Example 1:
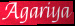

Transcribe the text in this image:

Agariya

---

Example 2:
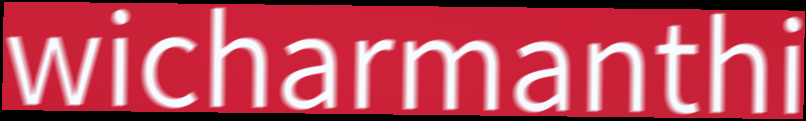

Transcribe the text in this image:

wicharmanthi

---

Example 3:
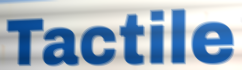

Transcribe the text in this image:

Tactile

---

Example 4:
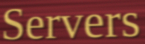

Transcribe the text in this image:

Servers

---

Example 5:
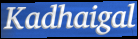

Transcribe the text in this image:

Kadhaigal